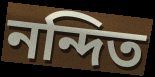
নন্দিত